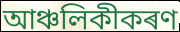
আঞ্চলিকীকৰণ